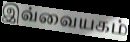
இவ்வையகம்